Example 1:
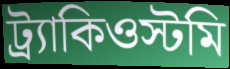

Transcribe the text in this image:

ট্র্যাকিওস্টমি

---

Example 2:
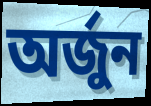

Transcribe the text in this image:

অর্জুন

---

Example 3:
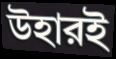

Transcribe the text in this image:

উহারই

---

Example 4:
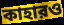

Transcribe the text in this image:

কাহারও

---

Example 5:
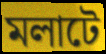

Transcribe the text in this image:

মলাটে